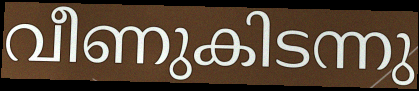
വീണുകിടന്നു